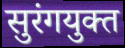
सुरंगयुक्त